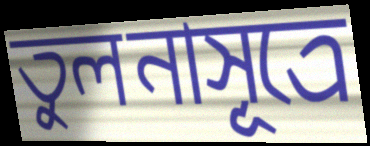
তুলনাসূত্রে